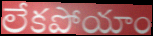
లేకపోయాం